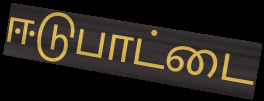
ஈடுபாட்டை